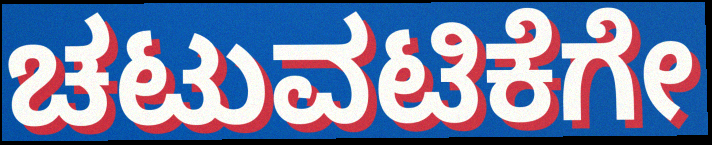
ಚಟುವಟಿಕೆಗೇ